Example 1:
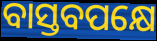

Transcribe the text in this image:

ବାସ୍ତବପକ୍ଷେ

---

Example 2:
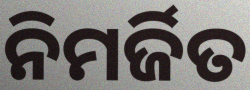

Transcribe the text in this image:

ନିମର୍ଜିତ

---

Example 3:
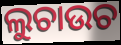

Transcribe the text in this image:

ଲୁଚାଉଚ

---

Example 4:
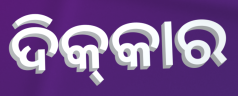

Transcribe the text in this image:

ଦିକ୍‌କାର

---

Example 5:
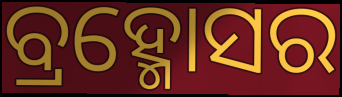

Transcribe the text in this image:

ବ୍ରହ୍ମୋସର